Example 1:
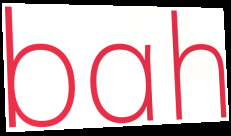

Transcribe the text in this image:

bah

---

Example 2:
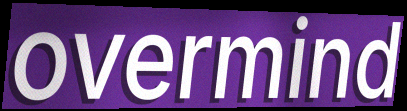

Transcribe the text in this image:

overmind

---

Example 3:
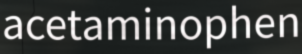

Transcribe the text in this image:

acetaminophen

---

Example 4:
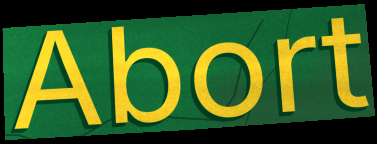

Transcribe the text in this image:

Abort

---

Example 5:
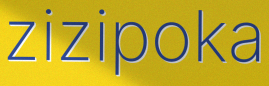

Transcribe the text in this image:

zizipoka